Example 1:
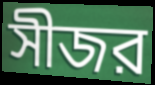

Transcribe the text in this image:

সীজর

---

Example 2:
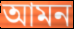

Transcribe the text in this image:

আমন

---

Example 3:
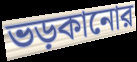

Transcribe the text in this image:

ভড়কানোর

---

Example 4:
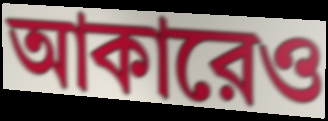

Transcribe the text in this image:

আকারেও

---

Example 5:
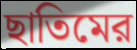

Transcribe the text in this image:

ছাতিমের